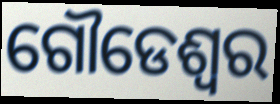
ଗୌଡେଶ୍ୱର